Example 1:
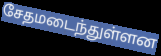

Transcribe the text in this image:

சேதமடைந்துள்ளன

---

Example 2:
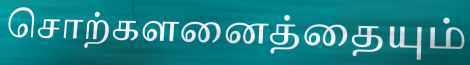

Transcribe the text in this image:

சொற்களனைத்தையும்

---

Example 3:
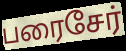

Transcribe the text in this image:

பரைசேர்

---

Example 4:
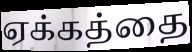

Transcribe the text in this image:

ஏக்கத்தை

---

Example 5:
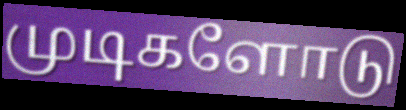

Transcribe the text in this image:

முடிகளோடு